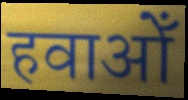
हवाओँ